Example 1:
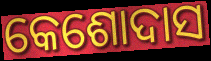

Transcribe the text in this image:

କେଶୋଦାସ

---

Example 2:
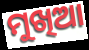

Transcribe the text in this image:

ମୁଖିଆ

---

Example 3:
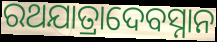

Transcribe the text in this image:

ରଥଯାତ୍ରାଦେବସ୍ନାନ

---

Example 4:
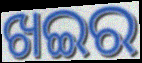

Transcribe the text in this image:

ଖଇର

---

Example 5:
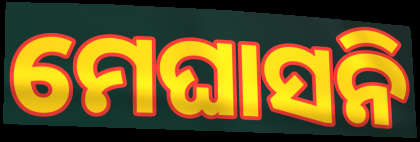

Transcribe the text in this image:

ମେଘାସନି